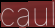
caul